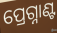
ପ୍ରେଗ୍ନାଣ୍ଟ